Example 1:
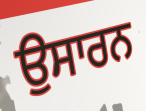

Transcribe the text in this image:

ਉਸਾਰਨ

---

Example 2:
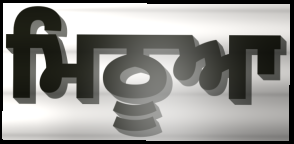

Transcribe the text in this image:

ਮਿਠੂਆ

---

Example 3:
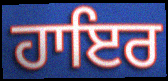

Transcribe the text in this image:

ਹਾਇਰ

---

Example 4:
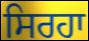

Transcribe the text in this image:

ਸਿਰਹਾ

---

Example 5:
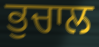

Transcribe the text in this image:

ਭੁਚਾਲ